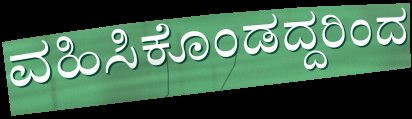
ವಹಿಸಿಕೊಂಡದ್ದರಿಂದ